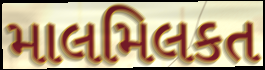
માલમિલકત